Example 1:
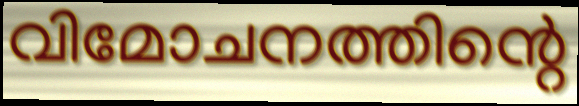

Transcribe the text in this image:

വിമോചനത്തിന്റെ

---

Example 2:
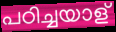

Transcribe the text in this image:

പഠിച്ചയാള്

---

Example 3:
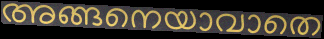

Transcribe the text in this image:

അങ്ങനെയാവാതെ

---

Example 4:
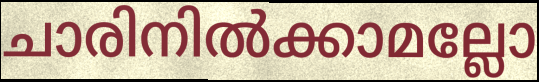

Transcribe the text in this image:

ചാരിനിൽക്കാമല്ലോ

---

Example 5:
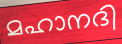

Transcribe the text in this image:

മഹാനദി